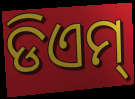
ଡିଏମ୍